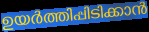
ഉയർത്തിപ്പിടിക്കാൻ